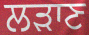
ਲੜਾਣ